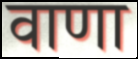
वाणा